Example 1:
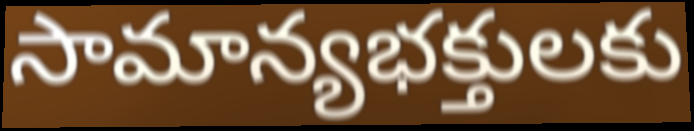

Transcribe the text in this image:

సామాన్యభక్తులకు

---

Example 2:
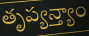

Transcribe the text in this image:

తృప్యన్త్యాం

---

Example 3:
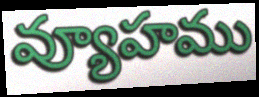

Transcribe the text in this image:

వ్యూహము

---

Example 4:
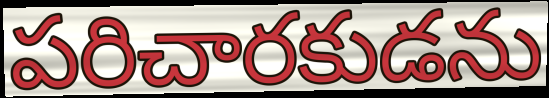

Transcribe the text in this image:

పరిచారకుడను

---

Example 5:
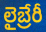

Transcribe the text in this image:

లైబ్రేరీ